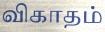
விகாதம்